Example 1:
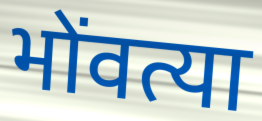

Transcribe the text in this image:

भोंवत्या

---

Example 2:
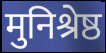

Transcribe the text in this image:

मुनिश्रेष्ठ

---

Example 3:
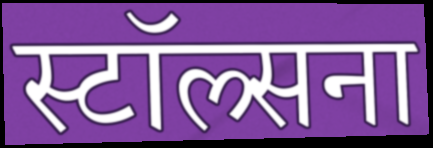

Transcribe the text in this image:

स्टॉल्सना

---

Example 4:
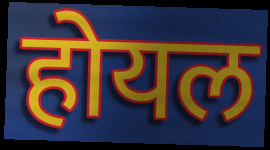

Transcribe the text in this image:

होयल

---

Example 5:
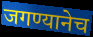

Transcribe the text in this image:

जगण्यानेच